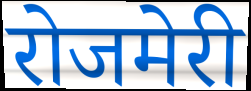
रोजमेरी